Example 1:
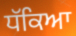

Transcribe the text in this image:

ਧੱਕਿਆ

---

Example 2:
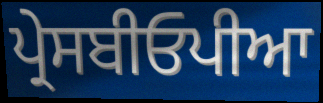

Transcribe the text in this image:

ਪ੍ਰੇਸਬੀਓਪੀਆ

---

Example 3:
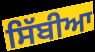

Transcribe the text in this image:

ਸਿੱਬੀਆ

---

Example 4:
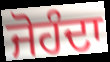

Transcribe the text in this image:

ਜੋਹੰਦਾ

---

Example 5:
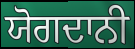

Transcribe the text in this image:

ਯੋਗਦਾਨੀ